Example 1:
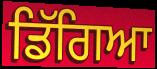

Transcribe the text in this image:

ਡਿੱਗਿਆ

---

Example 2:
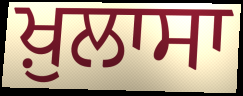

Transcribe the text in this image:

ਖ਼ੁਲਾਸਾ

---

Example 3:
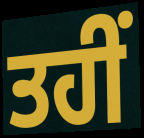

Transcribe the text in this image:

ਤਹੀਂ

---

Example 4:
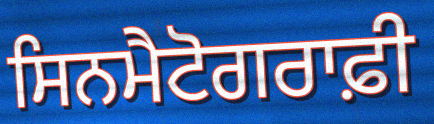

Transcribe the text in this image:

ਸਿਨਮੈਟੋਗਰਾਫ਼ੀ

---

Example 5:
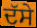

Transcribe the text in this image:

ਦੱਸੇ